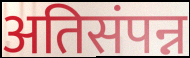
अतिसंपन्न